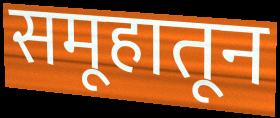
समूहातून